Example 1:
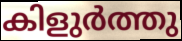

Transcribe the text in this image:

കിളുർത്തു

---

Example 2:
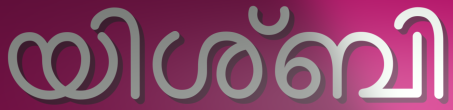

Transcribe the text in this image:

യിശ്ബി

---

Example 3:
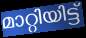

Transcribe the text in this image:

മാറ്റിയിട്ട്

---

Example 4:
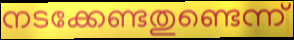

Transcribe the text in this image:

നടക്കേണ്ടതുണ്ടെന്ന്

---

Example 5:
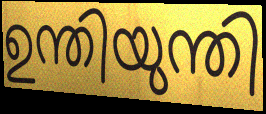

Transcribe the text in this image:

ഉന്തിയുന്തി